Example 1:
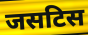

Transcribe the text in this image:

जसटिस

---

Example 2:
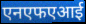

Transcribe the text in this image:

एनएफएआई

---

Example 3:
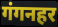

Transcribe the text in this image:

गंगनहर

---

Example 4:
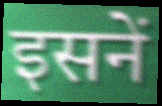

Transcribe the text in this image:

इसनें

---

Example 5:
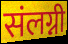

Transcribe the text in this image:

संलग्नी